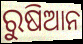
ରୁଷିଆନ